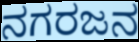
ನಗರಜನ